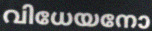
വിധേയനോ